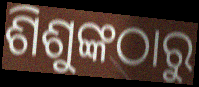
ଶିଶୁଙ୍କଠାରୁ